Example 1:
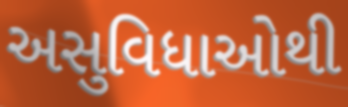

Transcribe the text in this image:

અસુવિધાઓથી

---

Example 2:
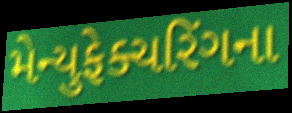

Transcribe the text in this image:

મેન્યુફેક્ચરિંગના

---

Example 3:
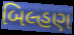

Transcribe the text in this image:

બિલ્હણ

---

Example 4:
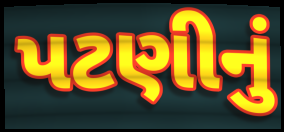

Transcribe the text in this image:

પટણીનું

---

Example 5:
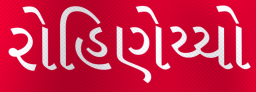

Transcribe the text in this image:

રોહિણેય્યો